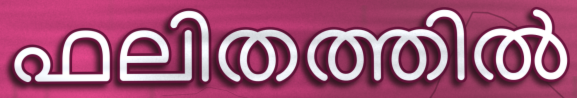
ഫലിതത്തിൽ